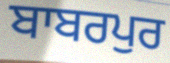
ਬਾਬਰਪੁਰ